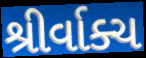
શ્રીર્વાક્ચ